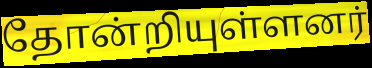
தோன்றியுள்ளனர்